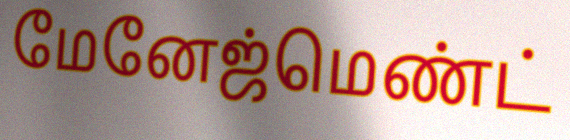
மேனேஜ்மெண்ட்